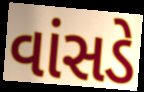
વાંસડે